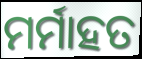
ମର୍ମାହତ